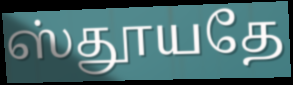
ஸ்தூயதே